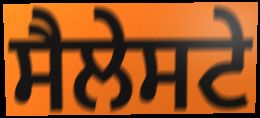
ਸੈਲੇਸਟੇ